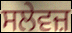
ਸਲੇਵਜ਼